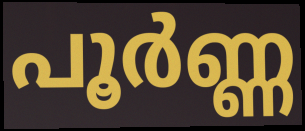
പൂർണ്ണ